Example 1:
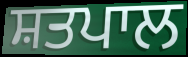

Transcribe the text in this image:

ਸ਼ਤਪਾਲ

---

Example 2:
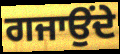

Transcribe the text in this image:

ਗਜਾਉਂਦੇ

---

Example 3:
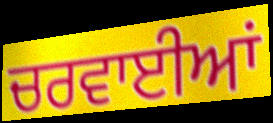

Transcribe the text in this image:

ਚਰਵਾਈਆਂ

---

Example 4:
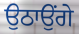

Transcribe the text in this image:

ਉਠਾਉਂਗੇ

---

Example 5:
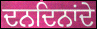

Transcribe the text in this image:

ਦਨਦਿਨਾਂਦੇ